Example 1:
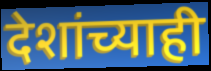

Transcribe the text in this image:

देशांच्याही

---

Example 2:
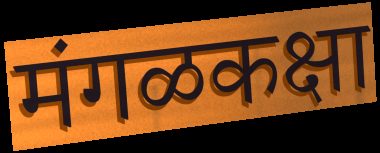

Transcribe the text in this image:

मंगळकक्षा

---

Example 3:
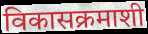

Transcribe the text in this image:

विकासक्रमाशी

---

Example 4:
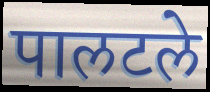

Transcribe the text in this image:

पालटले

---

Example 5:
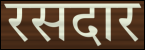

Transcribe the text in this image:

रसदार